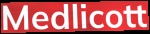
Medlicott